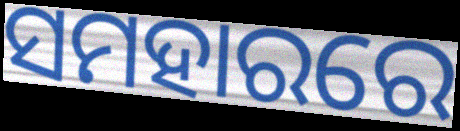
ସମହାରରେ